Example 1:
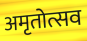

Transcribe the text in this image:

अमृतोत्सव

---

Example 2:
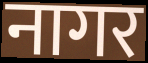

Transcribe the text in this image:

नागर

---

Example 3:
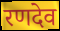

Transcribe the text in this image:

रणदेव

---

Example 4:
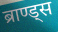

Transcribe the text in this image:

ब्राण्‍ड्स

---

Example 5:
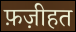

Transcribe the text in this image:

फ़ज़ीहत